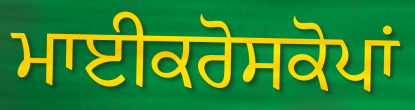
ਮਾਈਕਰੋਸਕੋਪਾਂ